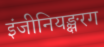
इंजीनियङ्क्षरग